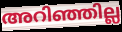
അറിഞ്ഞില്ല